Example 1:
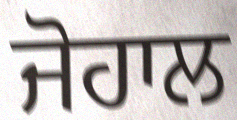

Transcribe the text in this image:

ਜੋਹਾਲ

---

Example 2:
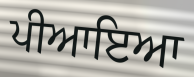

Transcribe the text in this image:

ਪੀਆਇਆ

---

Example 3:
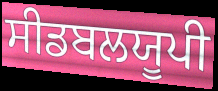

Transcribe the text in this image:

ਸੀਡਬਲਯੂਪੀ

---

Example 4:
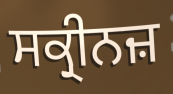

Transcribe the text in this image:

ਸਕ੍ਰੀਨਜ਼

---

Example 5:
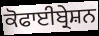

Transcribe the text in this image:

ਕੋਫਾਈਬ੍ਰੇਸ਼ਨ